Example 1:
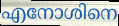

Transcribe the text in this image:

എനോശിനെ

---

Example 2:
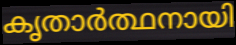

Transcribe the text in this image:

കൃതാർത്ഥനായി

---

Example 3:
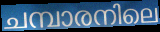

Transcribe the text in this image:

ചമ്പാരനിലെ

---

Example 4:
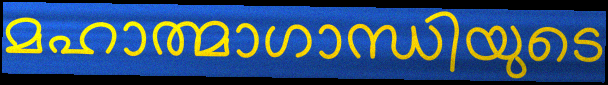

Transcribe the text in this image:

മഹാത്മാഗാന്ധിയുടെ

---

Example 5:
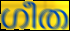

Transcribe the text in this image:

ഗീത